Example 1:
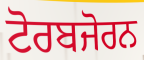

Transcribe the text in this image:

ਟੋਰਬਜੋਰਨ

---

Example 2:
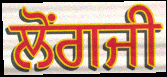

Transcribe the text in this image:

ਲੋਂਗਜੀ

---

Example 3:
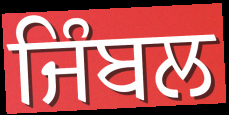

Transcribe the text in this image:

ਜਿੰਬਲ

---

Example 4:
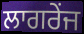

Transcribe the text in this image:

ਲਾਗਰੇਂਜ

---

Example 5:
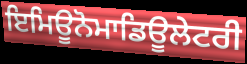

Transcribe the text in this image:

ਇਮਿਊਨੋਮਾਡਿਊਲੇਟਰੀ